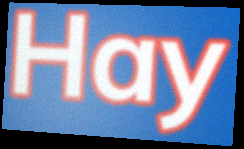
Hay